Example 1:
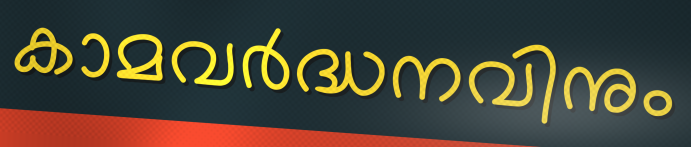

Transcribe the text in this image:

കാമവർദ്ധനവിനും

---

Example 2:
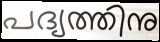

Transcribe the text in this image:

പദ്യത്തിനു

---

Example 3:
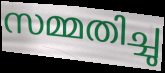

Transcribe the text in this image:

സമ്മതിച്ചു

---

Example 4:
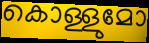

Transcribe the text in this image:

കൊള്ളുമോ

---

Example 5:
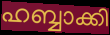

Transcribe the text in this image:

ഹബ്ബാക്കി